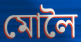
মোলৈ